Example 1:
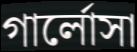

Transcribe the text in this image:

গার্লোসা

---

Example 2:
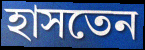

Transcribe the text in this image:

হাসতেন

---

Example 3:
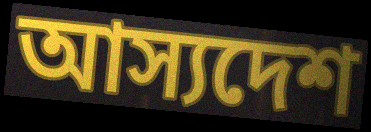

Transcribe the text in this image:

আস্যদেশ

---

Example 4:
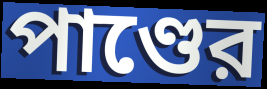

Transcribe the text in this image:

পাণ্ডের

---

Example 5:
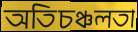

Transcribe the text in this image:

অতিচঞ্চলতা